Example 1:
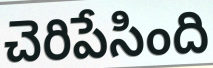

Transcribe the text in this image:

చెరిపేసింది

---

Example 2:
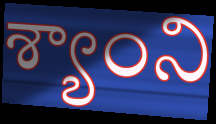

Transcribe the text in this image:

శ్యాంని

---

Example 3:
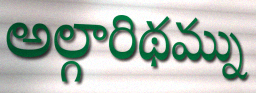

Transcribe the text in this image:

అల్గారిథమ్ను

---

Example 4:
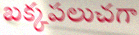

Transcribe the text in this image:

బక్కపలుచగా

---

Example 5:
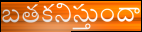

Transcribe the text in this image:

బతకనిస్తుందా